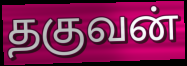
தகுவன்